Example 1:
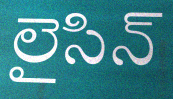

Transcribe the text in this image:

లైసిన్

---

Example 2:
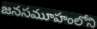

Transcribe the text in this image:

జనసమూహంలోని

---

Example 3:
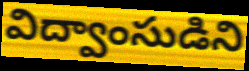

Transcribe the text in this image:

విద్వాంసుడిని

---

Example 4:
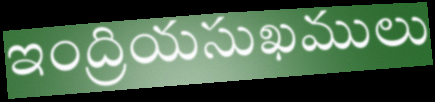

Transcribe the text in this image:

ఇంద్రియసుఖములు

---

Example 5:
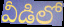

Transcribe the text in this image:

వీడిలో